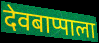
देवबाप्पाला